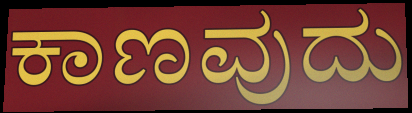
ಕಾಣವುದು